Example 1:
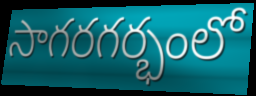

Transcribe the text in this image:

సాగరగర్భంలో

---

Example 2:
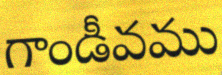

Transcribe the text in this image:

గాండీవము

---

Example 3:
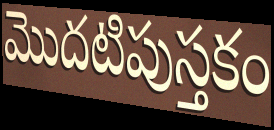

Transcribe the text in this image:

మొదటిపుస్తకం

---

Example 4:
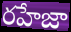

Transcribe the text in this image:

రహేజా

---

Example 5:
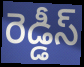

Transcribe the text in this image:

రెడ్డీస్